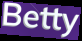
Betty